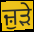
ਜ਼ੁੜੇ